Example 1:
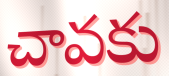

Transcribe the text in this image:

చావకు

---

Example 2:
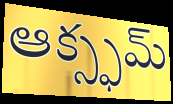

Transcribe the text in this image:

ఆక్స్ఫమ్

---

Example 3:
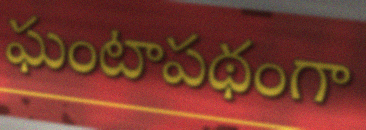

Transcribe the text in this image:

ఘంటాపథంగా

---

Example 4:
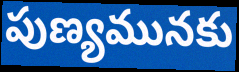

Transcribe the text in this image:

పుణ్యమునకు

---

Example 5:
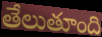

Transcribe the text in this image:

తేలుతూంది